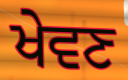
ਖੇਵਣ